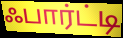
ஃபார்ட்டி